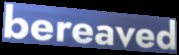
bereaved